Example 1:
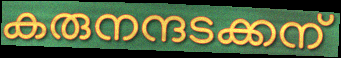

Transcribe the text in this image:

കരുനന്ദടക്കന്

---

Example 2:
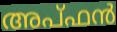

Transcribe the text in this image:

അപ്ഫൻ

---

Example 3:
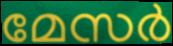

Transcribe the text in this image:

മേസർ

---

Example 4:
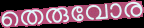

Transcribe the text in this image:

തെരുവോര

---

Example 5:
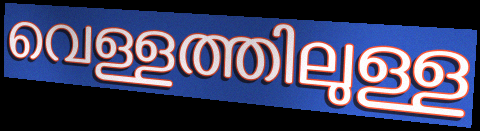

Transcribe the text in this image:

വെള്ളത്തിലുള്ള